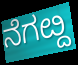
ನೆಗೞ್ದ